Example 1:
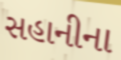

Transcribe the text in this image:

સહાનીના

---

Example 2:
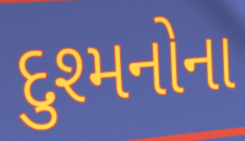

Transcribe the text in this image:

દુશ્મનોના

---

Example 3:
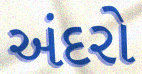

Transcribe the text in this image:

અંદરો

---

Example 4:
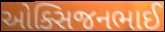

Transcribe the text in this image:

ઓક્સિજનભાઈ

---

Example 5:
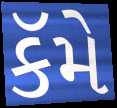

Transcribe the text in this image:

કૅમે